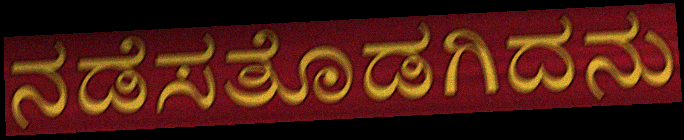
ನಡೆಸತೊಡಗಿದನು